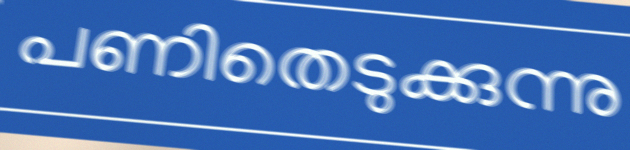
പണിതെടുക്കുന്നു